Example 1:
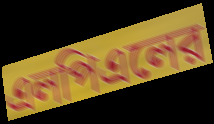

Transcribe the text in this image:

এলপিএলের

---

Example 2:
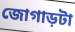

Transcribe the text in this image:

জোগাড়টা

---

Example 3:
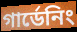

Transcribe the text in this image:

গার্ডেনিং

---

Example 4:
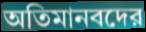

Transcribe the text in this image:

অতিমানবদের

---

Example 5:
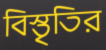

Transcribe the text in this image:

বিস্তৃতির